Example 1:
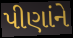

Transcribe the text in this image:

પીણાંને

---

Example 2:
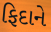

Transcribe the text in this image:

ફિદાને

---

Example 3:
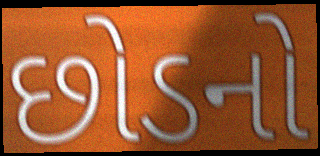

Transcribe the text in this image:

છોડનો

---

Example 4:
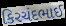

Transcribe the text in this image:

કિરચંદભાઈ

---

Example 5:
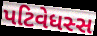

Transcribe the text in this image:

પટિવેધસ્સ